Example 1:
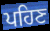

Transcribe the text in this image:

ਪਹਿਣ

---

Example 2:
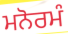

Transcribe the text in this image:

ਮਨੋਰਮੰ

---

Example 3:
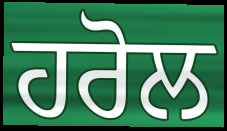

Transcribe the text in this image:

ਹਰੋਲ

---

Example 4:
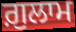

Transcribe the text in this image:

ਗ਼ੁਲਾਮ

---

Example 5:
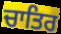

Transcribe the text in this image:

ਚਾਤਿਰ